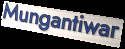
Mungantiwar